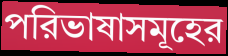
পরিভাষাসমূহের